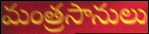
మంత్రసానులు